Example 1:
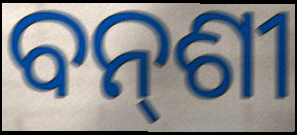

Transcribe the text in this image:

ବନ୍‍ଶୀ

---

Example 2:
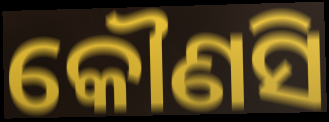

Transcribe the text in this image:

କୌଣସି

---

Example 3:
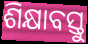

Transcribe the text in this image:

ଶିକ୍ଷାବସ୍ତୁ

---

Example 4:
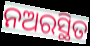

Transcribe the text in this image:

ନଅରସ୍ଥିତ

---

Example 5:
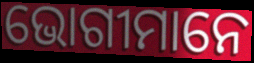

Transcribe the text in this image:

ଭୋଗୀମାନେ